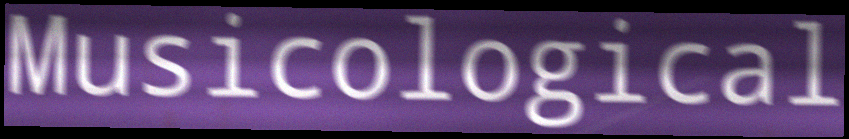
Musicological